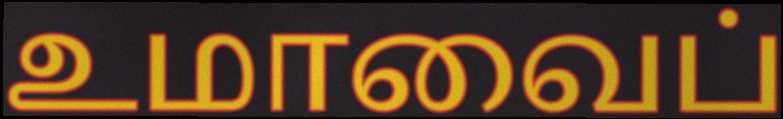
உமாவைப்